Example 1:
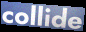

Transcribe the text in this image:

collide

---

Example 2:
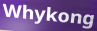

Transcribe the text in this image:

Whykong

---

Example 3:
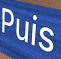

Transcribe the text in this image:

Puis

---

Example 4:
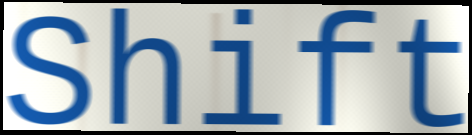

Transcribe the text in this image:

Shift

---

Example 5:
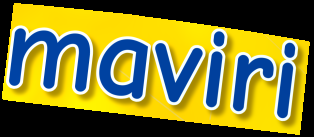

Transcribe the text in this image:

maviri